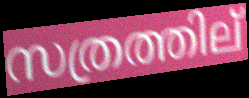
സത്രത്തില്